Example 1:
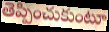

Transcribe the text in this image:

తెప్పించుకుంటూ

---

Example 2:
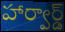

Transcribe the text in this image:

హార్వార్డ్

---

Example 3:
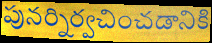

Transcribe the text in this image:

పునర్నిర్వచించడానికి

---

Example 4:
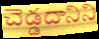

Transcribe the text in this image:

చెడ్డదానిని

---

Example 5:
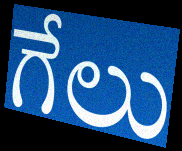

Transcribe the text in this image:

గేలు